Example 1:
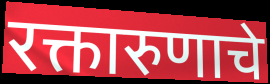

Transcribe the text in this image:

रक्तारुणाचे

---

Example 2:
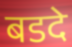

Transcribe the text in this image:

बडदे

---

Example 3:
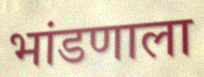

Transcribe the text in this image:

भांडणाला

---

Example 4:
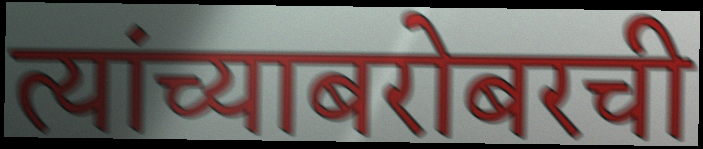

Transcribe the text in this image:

त्यांच्याबरोबरची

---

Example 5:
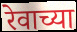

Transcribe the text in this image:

रेवाच्या